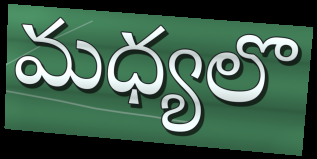
మధ్యలొ